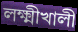
লক্ষ্মীখালী